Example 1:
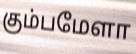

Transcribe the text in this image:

கும்பமேளா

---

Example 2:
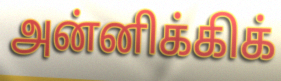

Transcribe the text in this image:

அன்னிக்கிக்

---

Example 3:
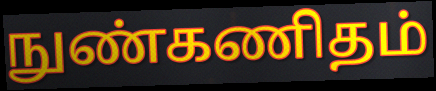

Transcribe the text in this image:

நுண்கணிதம்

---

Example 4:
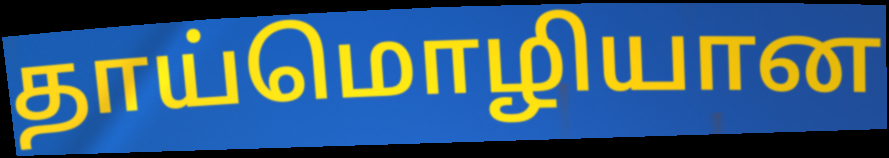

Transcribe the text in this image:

தாய்மொழியான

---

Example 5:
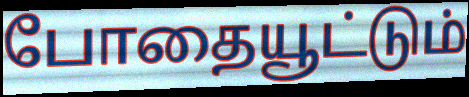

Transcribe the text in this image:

போதையூட்டும்